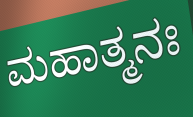
ಮಹಾತ್ಮನಃ